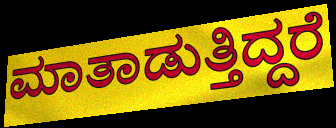
ಮಾತಾಡುತ್ತಿದ್ದರೆ